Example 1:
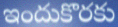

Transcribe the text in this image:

ఇందుకొరకు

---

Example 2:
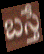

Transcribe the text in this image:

బస్తే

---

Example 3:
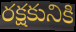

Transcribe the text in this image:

రక్షకునికి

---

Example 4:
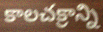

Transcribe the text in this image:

కాలచక్రాన్ని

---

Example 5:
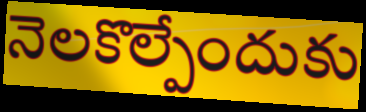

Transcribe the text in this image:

నెలకొల్పేందుకు